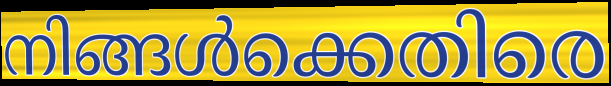
നിങ്ങൾക്കെതിരെ